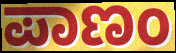
ಪಾಣಂ